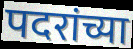
पदरांच्या